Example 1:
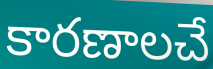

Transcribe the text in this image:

కారణాలచే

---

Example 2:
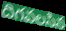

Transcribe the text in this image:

దిగవలసిన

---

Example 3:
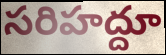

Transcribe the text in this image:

సరిహద్దూ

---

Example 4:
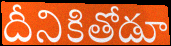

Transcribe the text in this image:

దీనికితోడూ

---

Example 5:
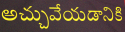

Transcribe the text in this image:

అచ్చువేయడానికి